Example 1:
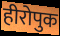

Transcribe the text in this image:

हीरोपुक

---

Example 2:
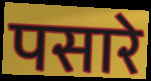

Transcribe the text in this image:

पसारे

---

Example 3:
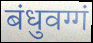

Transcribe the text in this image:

बंधुवग्गं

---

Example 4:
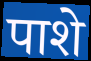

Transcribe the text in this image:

पाशे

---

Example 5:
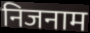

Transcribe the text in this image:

निजनाम